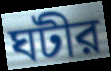
ঘটীর